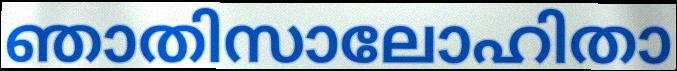
ഞാതിസാലോഹിതാ